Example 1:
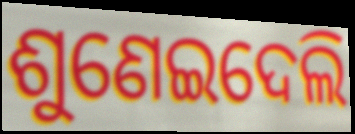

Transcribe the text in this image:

ଶୁଣେଇଦେଲି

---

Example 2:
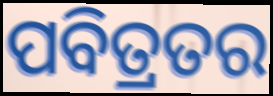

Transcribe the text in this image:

ପବିତ୍ରତର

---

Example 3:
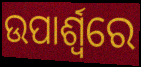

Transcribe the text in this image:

ଉପାର୍ଶ୍ଵରେ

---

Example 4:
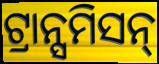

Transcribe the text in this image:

ଟ୍ରାନ୍ସମିସନ୍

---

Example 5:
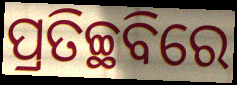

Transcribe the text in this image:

ପ୍ରତିଚ୍ଛବିରେ